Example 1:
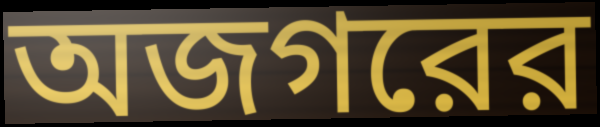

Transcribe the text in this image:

অজগরের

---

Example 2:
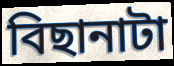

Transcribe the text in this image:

বিছানাটা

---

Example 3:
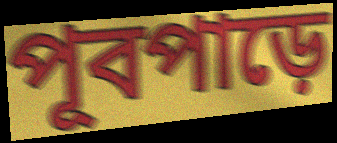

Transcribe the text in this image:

পূবপাড়ে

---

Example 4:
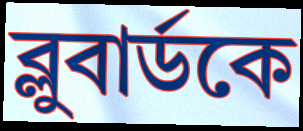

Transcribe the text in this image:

ব্লুবার্ডকে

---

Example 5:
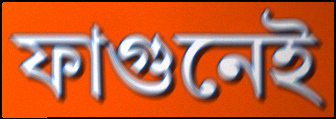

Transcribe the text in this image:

ফাগুনেই